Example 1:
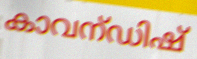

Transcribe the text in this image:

കാവന്ഡിഷ്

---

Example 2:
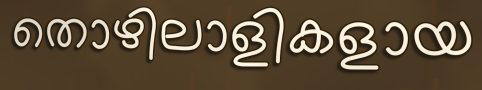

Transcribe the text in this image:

തൊഴിലാളികളായ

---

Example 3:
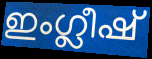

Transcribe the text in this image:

ഇംഗ്ലീഷ്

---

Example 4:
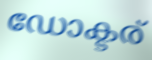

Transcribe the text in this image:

ഡോക്ടര്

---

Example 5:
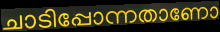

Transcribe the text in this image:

ചാടിപ്പോന്നതാണോ